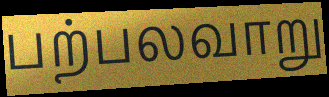
பற்பலவாறு